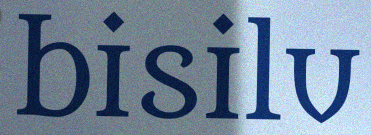
bisilu